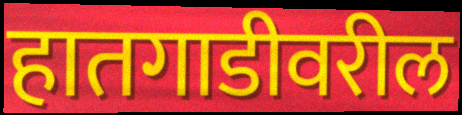
हातगाडीवरील